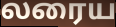
லரைய